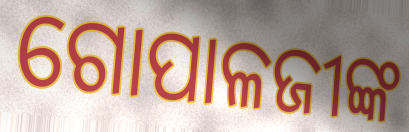
ଗୋପାଳଜୀଙ୍କ